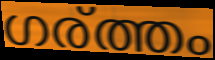
ഗര്ത്തം